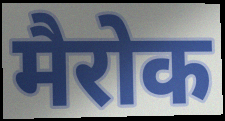
मैरोक